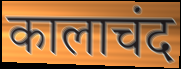
कालाचंद